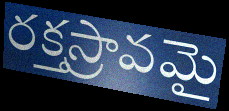
రక్తస్రావమై